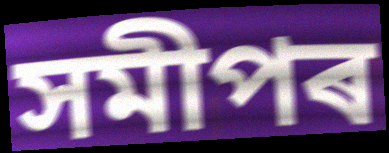
সমীপৰ